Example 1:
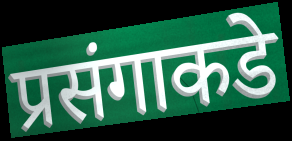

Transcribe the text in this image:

प्रसंगाकडे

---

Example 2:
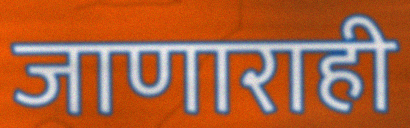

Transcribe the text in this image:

जाणाराही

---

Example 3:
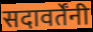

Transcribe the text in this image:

सदावर्तेंनी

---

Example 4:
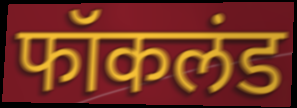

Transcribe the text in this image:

फॉकलंड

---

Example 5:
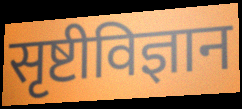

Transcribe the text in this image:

सृष्टीविज्ञान